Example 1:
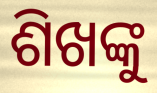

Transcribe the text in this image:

ଶିଖଙ୍କୁ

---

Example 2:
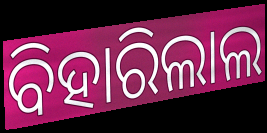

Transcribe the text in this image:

ବିହାରିଲାଲ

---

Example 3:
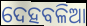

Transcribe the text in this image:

ଦେହବଳିଆ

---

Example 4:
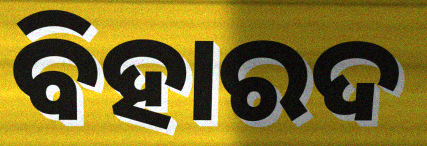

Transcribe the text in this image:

ବିହାରଦ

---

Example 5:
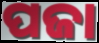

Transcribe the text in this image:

ପଜା